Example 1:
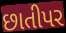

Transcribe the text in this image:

છાતીપર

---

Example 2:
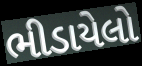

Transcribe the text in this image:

ભીડાયેલો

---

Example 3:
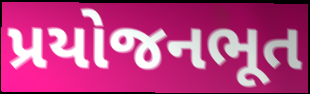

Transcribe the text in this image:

પ્રયોજનભૂત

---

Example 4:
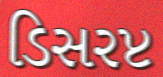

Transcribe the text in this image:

ડિસરપ્ટ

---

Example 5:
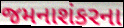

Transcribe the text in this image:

જમનાશંકરના